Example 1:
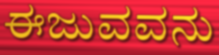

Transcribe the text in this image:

ಈಜುವವನು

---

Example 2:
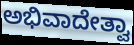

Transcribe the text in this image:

ಅಭಿವಾದೇತ್ವಾ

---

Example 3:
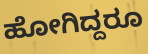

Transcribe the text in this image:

ಹೋಗಿದ್ದರೂ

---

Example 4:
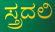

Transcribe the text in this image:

ಸ್ತ್ರದಲಿ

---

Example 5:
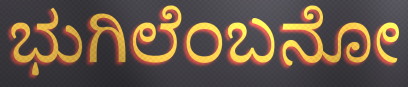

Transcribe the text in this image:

ಭುಗಿಲೆಂಬನೋ